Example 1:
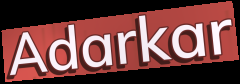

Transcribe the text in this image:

Adarkar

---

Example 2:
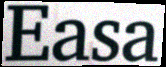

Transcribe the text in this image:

Easa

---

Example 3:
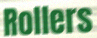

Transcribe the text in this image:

Rollers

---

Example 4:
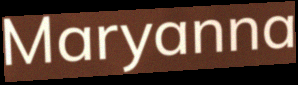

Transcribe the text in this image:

Maryanna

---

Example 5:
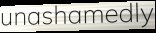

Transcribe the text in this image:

unashamedly